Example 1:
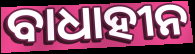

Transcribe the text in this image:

ବାଧାହୀନ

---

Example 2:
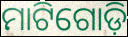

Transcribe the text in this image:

ମାଟିଗୋଡ଼ି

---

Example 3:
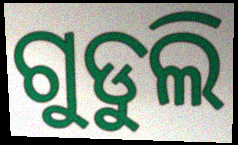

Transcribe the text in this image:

ଗୁଡୁଲି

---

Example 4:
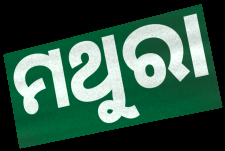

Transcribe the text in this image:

ମଥୁରା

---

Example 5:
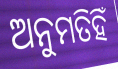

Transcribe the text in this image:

ଅନୁମତିହିଁ